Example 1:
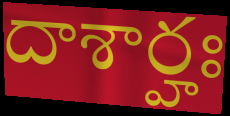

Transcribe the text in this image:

దాశార్హః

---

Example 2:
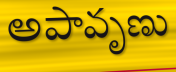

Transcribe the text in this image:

అపావృణు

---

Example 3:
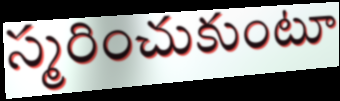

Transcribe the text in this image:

స్మరించుకుంటూ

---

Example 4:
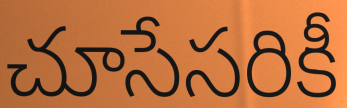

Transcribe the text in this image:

చూసేసరికీ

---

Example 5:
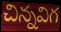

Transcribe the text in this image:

చిన్నవిగ